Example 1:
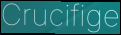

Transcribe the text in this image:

Crucifige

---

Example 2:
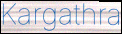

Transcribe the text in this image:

Kargathra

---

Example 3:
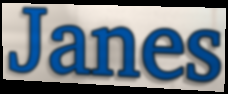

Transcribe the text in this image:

Janes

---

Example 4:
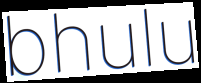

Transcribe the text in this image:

bhulu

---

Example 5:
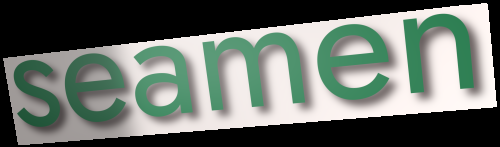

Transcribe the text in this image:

seamen